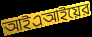
আইএআইয়ের